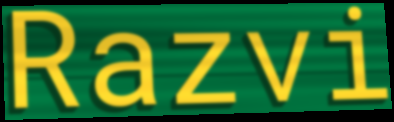
Razvi